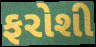
ફરોશી